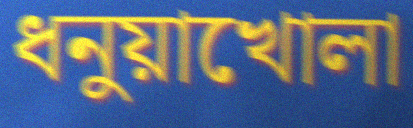
ধনুয়াখোলা